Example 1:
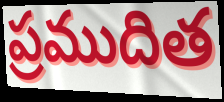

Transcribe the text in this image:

ప్రముదిత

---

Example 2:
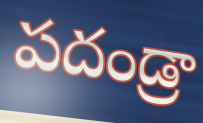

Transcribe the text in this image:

పదండ్రా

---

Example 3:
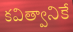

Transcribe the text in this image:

కవిత్వానికే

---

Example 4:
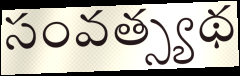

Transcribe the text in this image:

సంవత్స్యథ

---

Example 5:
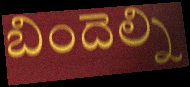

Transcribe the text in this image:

బిందెల్ని